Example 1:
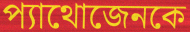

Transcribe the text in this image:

প্যাথোজেনকে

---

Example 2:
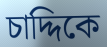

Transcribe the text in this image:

চাদ্দিকে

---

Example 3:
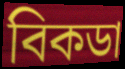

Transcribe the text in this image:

বিকডা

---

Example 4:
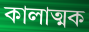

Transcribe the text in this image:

কালাত্মক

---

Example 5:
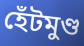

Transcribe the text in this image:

হেঁটমুণ্ড